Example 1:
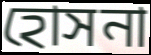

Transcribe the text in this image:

হোসনা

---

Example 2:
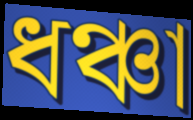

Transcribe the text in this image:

ধঞ্চা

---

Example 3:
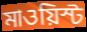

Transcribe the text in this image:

মাওয়িস্ট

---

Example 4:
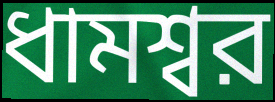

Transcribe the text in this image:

ধামশ্বর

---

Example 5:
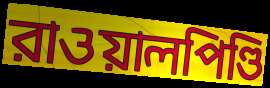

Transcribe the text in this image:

রাওয়ালপিণ্ডি